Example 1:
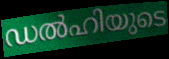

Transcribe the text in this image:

ഡൽഹിയുടെ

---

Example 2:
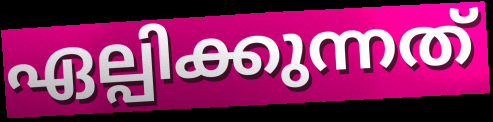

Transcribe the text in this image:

ഏല്പിക്കുന്നത്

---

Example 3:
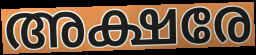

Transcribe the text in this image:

അക്ഷരേ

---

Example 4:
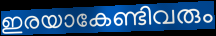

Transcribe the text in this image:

ഇരയാകേണ്ടിവരും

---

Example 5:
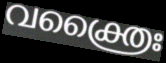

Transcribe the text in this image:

വക്ത്രൈഃ